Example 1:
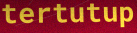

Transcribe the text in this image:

tertutup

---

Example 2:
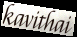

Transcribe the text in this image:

kavithai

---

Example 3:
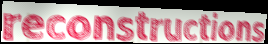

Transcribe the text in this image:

reconstructions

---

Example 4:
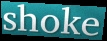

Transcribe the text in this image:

shoke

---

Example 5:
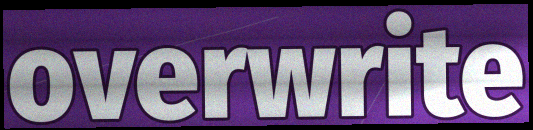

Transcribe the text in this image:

overwrite